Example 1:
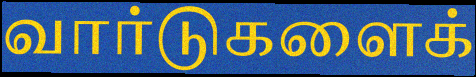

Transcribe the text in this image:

வார்டுகளைக்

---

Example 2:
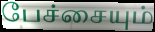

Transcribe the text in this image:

பேச்சையும்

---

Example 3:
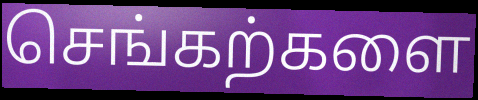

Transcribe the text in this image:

செங்கற்களை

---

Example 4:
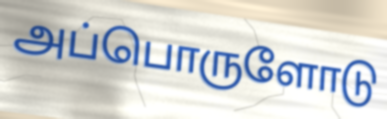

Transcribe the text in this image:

அப்பொருளோடு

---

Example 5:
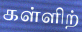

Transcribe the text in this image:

கள்ளிற்